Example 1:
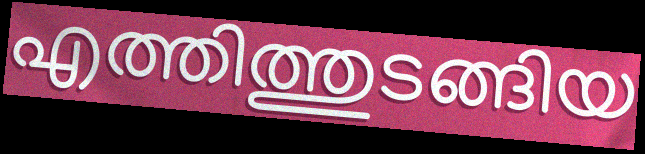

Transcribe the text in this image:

എത്തിത്തുടങ്ങിയ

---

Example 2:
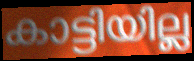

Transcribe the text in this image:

കാട്ടിയില്ല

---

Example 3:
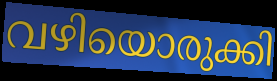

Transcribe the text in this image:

വഴിയൊരുക്കി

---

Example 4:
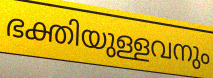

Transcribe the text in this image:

ഭക്തിയുള്ളവനും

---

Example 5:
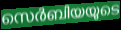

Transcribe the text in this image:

സെർബിയയുടെ